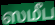
ஸமீப